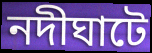
নদীঘাটে